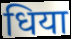
धिया